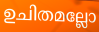
ഉചിതമല്ലോ